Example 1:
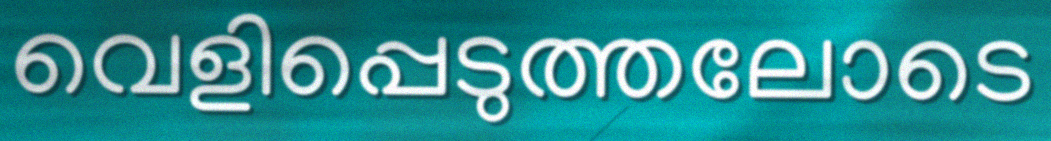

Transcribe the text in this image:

വെളിപ്പെടുത്തലോടെ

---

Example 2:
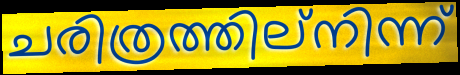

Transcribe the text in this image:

ചരിത്രത്തില്നിന്ന്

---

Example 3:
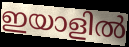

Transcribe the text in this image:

ഇയാളിൽ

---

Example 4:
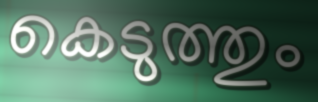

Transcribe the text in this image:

കെടുത്തും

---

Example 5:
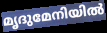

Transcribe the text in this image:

മൃദുമേനിയിൽ